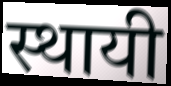
स्‍थायी